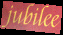
jubilee